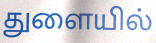
துளையில்